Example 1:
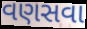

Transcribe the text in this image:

વણસવા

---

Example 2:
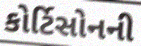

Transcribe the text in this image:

કોર્ટિસોનની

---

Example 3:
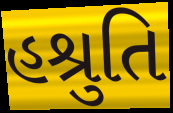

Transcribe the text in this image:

હશ્રુતિ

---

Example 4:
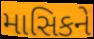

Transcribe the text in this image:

માસિકને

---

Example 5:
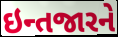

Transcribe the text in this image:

ઇન્તજારને